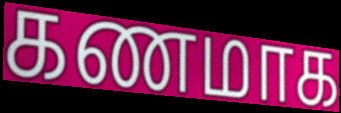
கணமாக